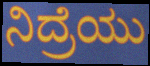
ನಿದ್ರೆಯು